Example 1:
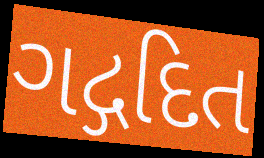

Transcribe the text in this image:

ગદ્ગદિત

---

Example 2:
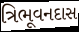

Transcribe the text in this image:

ત્રિભૂવનદાસ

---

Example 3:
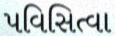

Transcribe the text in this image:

પવિસિત્વા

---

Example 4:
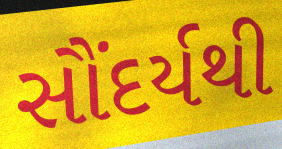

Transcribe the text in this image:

સૌંદર્યથી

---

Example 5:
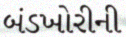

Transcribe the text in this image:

બંડખોરીની